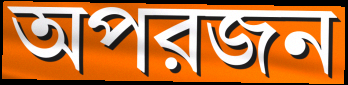
অপরজন